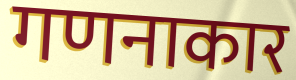
गणनाकार